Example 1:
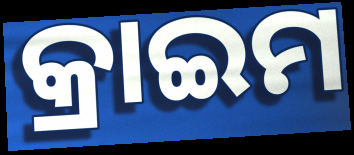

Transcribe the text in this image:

କ୍ରାଇମ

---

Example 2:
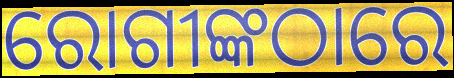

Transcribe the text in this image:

ରୋଗୀଙ୍କଠାରେ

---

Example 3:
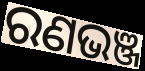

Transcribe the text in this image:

ରଣଭଞ୍ଜ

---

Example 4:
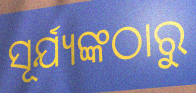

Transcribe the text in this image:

ସୂର୍ଯ୍ୟଙ୍କଠାରୁ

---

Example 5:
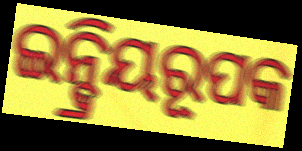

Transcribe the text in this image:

ଇନ୍ଦ୍ରିୟରୂପକ